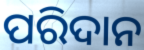
ପରିଦାନ